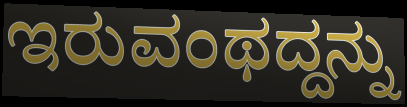
ಇರುವಂಥದ್ದನ್ನು